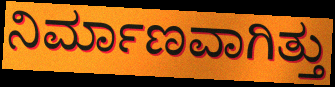
ನಿರ್ಮಾಣವಾಗಿತ್ತು